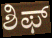
ಶಿಫ್